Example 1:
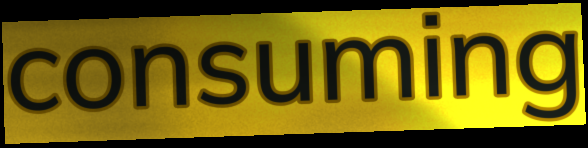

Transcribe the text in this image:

consuming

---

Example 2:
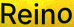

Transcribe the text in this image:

Reino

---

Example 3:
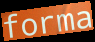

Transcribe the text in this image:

forma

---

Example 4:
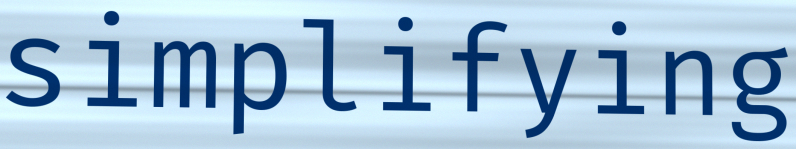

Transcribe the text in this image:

simplifying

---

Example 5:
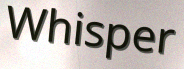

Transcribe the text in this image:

Whisper